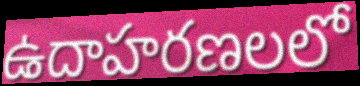
ఉదాహరణలలో